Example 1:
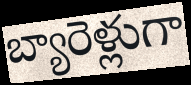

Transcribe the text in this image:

బ్యారెళ్లుగా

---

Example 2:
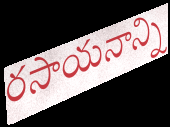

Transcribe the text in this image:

రసాయనాన్ని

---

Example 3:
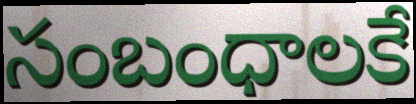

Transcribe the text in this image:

సంబంధాలకే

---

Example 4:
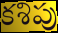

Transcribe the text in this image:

కశిపు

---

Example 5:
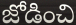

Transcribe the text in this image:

జోడించి